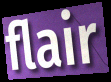
flair